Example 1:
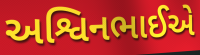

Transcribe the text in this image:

અશ્વિનભાઈએ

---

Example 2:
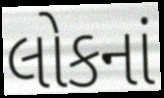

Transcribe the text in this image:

લોકનાં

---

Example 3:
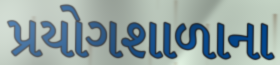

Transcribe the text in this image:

પ્રયોગશાળાના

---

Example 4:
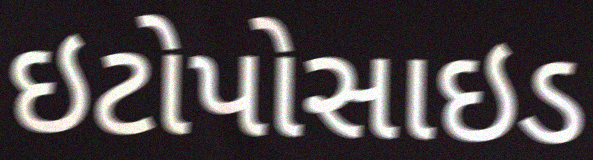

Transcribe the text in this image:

ઇટોપોસાઇડ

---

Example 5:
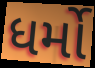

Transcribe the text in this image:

ધર્મો